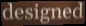
designed